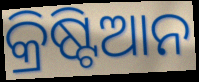
କ୍ରିଷ୍ଟିଆନ